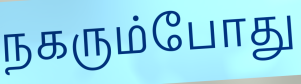
நகரும்போது